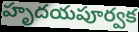
హృదయపూర్వక